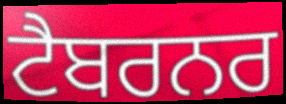
ਟੈਬਰਨਰ